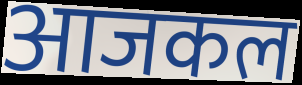
आजकल